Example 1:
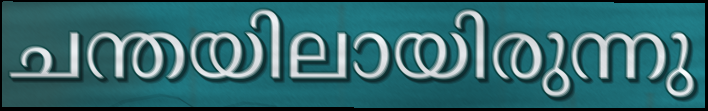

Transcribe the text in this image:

ചന്തയിലായിരുന്നു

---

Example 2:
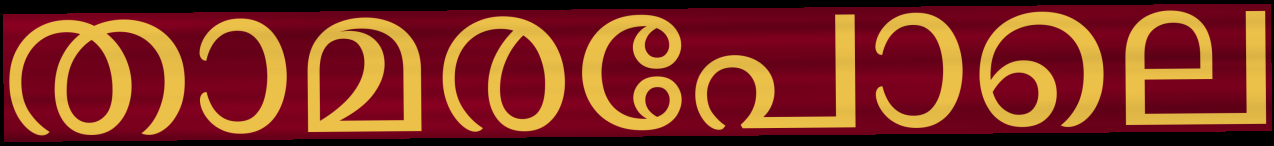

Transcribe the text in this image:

താമരപോലെ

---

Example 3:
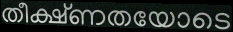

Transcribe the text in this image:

തീക്ഷ്ണതയോടെ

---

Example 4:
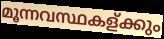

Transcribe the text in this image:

മൂന്നവസ്ഥകള്ക്കും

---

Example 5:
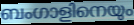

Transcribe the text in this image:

ബംഗാളിനെയും